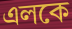
এলকে